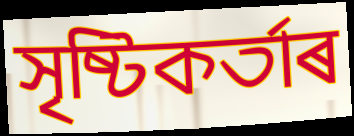
সৃষ্টিকৰ্তাৰ